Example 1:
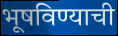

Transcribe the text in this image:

भूषविण्याची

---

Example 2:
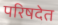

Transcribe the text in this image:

परिषदेत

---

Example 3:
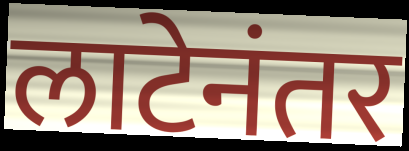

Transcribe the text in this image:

लाटेनंतर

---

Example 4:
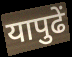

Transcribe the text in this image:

यापुढें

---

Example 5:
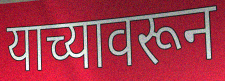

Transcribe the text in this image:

याच्यावरून